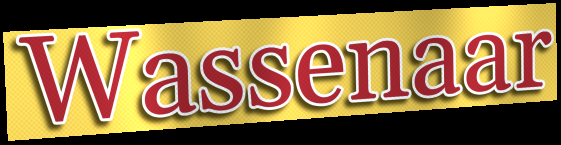
Wassenaar